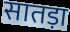
सातड़ा